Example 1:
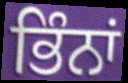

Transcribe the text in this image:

ਭਿੰਨਾਂ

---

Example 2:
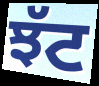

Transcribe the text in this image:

ਝੱਟ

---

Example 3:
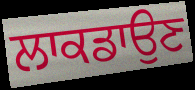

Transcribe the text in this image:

ਲਾਕਡਾਉਣ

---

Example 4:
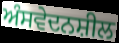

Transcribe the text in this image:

ਅੰਸਵੇਦਨਸ਼ੀਲ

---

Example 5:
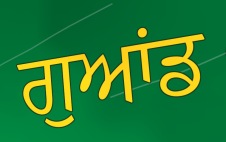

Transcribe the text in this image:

ਗੁਆਂਡ